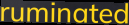
ruminated